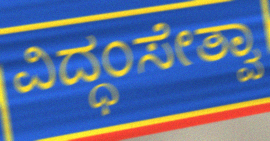
ವಿದ್ಧಂಸೇತ್ವಾ